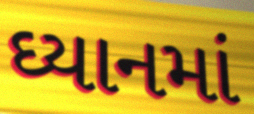
ઘ્યાનમાં